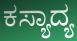
ಕಸ್ಯಾದ್ಯ